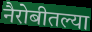
नैरोबीतल्या